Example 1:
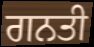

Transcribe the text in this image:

ਗਨਤੀ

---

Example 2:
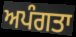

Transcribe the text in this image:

ਅਪੰਗਤਾ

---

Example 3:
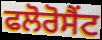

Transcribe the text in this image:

ਫਲੋਰੋਸੈਂਟ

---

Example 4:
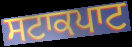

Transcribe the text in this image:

ਸਟਾਕਪਾਟ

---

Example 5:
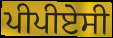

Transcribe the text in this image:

ਪੀਪੀਏਸੀ